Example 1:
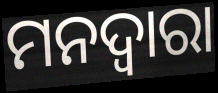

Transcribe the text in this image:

ମନଦ୍ଵାରା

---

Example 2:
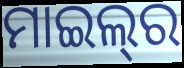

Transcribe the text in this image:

ମାଇଲ୍‍ର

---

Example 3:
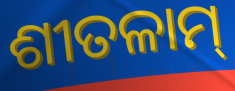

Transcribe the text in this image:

ଶୀତଳାମ୍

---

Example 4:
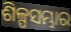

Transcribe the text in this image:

ଶିଳ୍ପସମ୍ଭାର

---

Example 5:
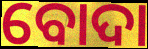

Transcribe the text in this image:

ବୋଦା